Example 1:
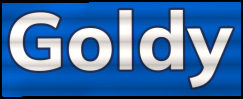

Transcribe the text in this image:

Goldy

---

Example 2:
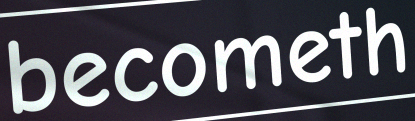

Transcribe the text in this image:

becometh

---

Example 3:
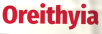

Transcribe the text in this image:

Oreithyia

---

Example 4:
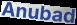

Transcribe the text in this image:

Anubad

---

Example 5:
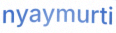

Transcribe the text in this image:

nyaymurti